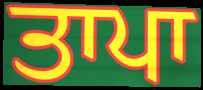
ਤਾਪਾ